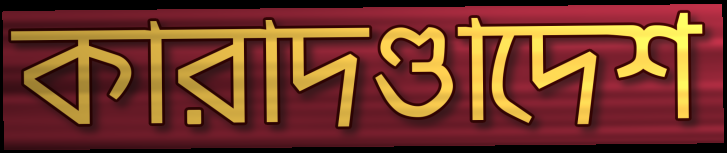
কারাদণ্ডাদেশ